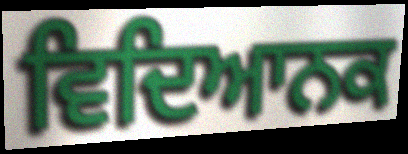
ਵਿਦਿਆਨਕ